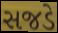
સજડે